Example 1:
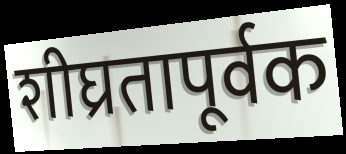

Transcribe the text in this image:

शीघ्रतापूर्वक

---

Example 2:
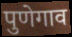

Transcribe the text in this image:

पुणेगाव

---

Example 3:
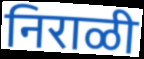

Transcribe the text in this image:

निराळी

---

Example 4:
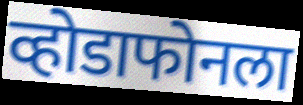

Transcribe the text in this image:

व्होडाफोनला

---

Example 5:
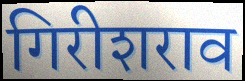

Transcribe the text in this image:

गिरीशराव